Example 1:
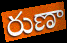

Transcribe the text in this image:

రుణా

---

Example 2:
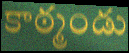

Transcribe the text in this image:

కాఠ్మండు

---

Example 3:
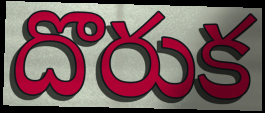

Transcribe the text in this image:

దొరుక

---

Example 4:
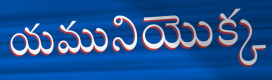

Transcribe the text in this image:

యమునియొక్క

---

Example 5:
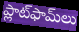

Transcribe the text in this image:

ప్లాట్‌ఫామ్‌లు